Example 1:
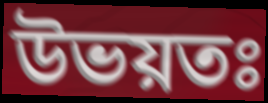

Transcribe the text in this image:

উভয়তঃ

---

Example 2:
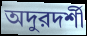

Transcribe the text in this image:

অদুরদর্শী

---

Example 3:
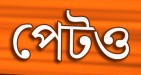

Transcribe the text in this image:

পেটও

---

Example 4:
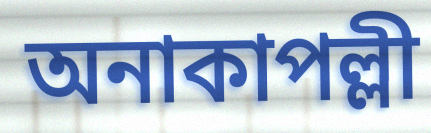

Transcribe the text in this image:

অনাকাপল্লী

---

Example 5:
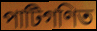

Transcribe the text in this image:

পাটিগণিত